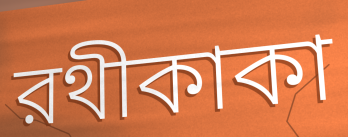
রথীকাকা